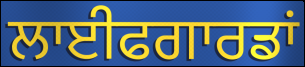
ਲਾਈਫਗਾਰਡਾਂ